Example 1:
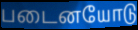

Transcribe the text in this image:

படைனயோடு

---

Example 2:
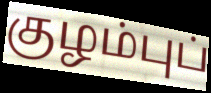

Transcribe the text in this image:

குழம்புப்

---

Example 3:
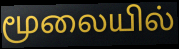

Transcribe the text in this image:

மூலையில்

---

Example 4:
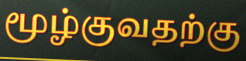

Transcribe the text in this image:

மூழ்குவதற்கு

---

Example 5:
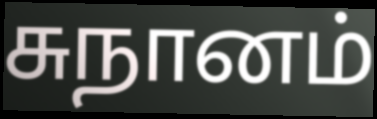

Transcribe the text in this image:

சுநானம்